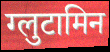
ग्लुटामिन